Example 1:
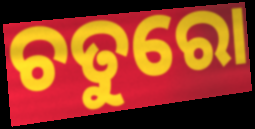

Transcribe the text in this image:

ଚତୁରୋ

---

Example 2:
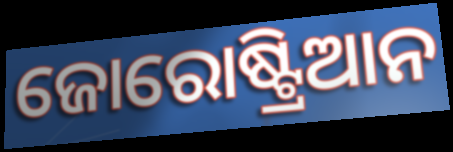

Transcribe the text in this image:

ଜୋରୋଷ୍ଟ୍ରିଆନ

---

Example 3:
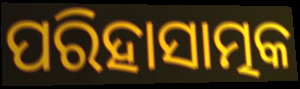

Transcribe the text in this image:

ପରିହାସାତ୍ମକ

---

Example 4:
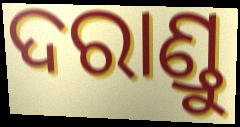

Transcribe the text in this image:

ଦରାଣ୍ଡୁ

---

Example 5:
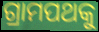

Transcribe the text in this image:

ଗ୍ରାମପଥକୁ